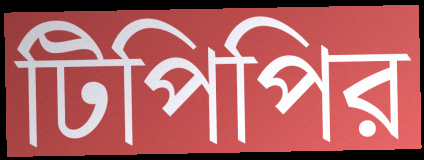
টিপিপির